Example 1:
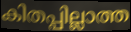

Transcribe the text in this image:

കിതപ്പില്ലാത്ത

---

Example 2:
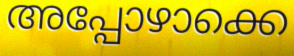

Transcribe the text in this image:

അപ്പോഴാക്കെ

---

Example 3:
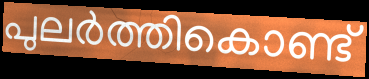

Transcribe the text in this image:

പുലർത്തികൊണ്ട്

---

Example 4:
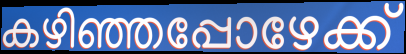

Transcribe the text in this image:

കഴിഞ്ഞപ്പോഴേക്ക്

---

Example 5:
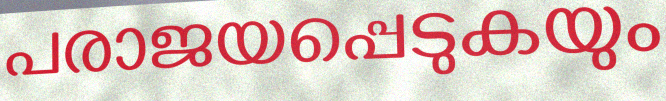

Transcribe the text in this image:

പരാജയപ്പെടുകയും